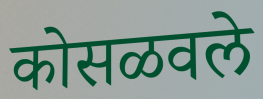
कोसळवले